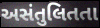
અસંતુલિતતા